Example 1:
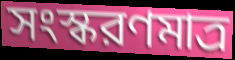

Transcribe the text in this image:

সংস্করণমাত্র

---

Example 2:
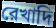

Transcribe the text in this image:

রেখাদি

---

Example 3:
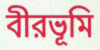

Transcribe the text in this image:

বীরভূমি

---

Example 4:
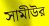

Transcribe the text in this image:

সামীউর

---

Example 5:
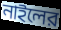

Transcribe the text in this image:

নাইলের